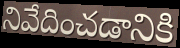
నివేదించడానికి